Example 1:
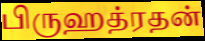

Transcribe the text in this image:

பிருஹத்ரதன்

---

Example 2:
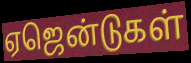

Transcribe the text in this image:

ஏஜென்டுகள்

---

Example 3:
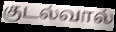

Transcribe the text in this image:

குடல்வால்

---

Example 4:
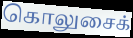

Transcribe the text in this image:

கொலுசைக்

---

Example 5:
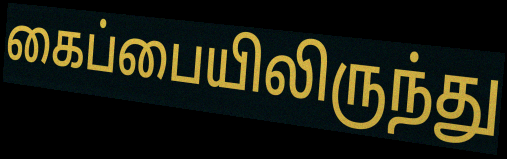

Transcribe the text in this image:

கைப்பையிலிருந்து